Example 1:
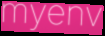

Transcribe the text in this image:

myenv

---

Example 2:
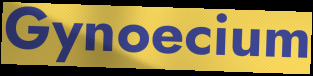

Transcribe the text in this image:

Gynoecium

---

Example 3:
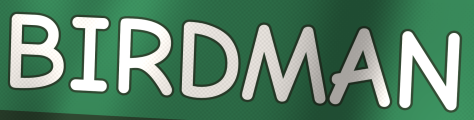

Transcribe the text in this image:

BIRDMAN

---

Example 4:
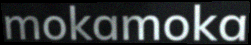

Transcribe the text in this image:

mokamoka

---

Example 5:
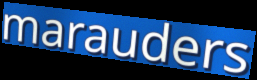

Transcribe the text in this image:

marauders